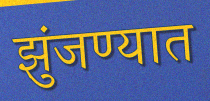
झुंजण्यात